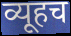
व्यूहच